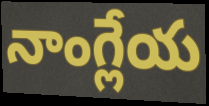
నాంగ్లేయ